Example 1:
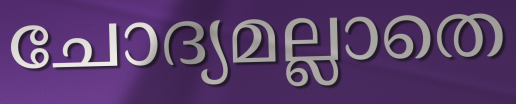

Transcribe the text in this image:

ചോദ്യമല്ലാതെ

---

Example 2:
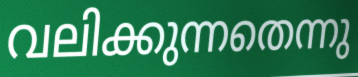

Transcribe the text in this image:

വലിക്കുന്നതെന്നു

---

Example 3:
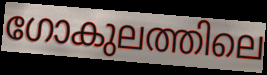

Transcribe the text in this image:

ഗോകുലത്തിലെ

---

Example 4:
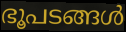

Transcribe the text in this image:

ഭൂപടങ്ങൾ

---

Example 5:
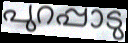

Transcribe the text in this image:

പുറപ്പാടു